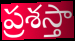
ప్రశస్తా